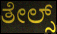
ತೇಲ್ಸ್